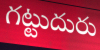
గట్టుదురు